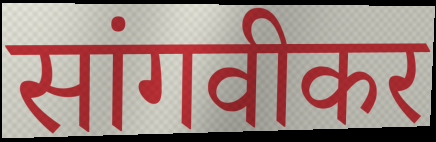
सांगवीकर